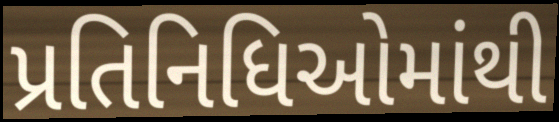
પ્રતિનિધિઓમાંથી